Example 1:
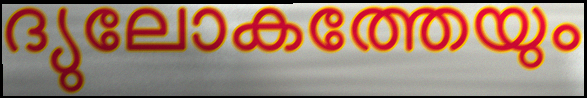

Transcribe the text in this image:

ദ്യുലോകത്തേയും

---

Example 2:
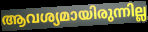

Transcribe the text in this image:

ആവശ്യമായിരുന്നില്ല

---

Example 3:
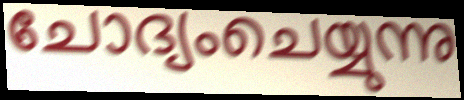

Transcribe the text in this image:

ചോദ്യംചെയ്യുന്നു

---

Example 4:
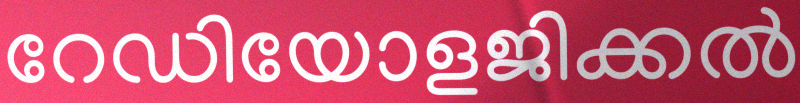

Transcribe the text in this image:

റേഡിയോളജിക്കൽ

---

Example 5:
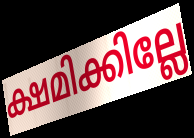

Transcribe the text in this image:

ക്ഷമിക്കില്ലേ